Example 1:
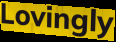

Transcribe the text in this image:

Lovingly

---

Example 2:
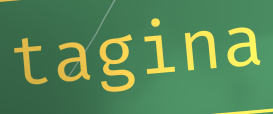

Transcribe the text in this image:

tagina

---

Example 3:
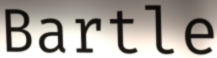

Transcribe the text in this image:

Bartle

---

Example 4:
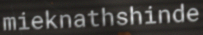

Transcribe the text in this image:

mieknathshinde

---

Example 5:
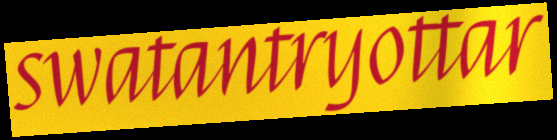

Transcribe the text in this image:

swatantryottar